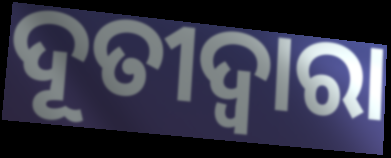
ଦୂତୀଦ୍ୱାରା